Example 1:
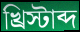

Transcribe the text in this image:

খ্রিস্টাব্দ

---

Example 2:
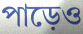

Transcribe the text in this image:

পাড়েও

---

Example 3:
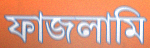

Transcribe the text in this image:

ফাজলামি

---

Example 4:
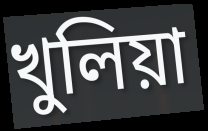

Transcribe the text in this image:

খুলিয়া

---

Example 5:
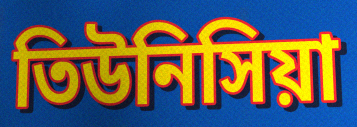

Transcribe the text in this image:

তিউনিসিয়া